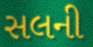
સલની